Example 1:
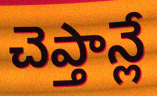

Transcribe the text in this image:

చెప్తాన్లే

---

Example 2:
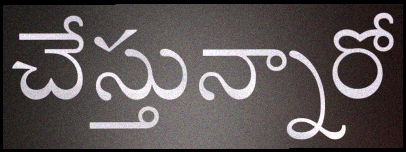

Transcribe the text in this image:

చేస్తున్నారో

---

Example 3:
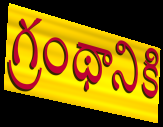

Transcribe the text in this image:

గ్రంథానికి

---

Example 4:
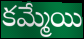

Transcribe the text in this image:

కమ్మేయి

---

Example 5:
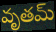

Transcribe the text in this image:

వృతమ్